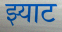
झ्याट